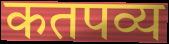
कतपव्य